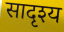
सादृश्य